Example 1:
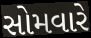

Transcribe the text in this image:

સોમવારે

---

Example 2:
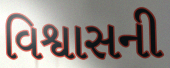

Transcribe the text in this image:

વિશ્વાસની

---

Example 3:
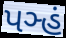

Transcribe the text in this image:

પઞ્હં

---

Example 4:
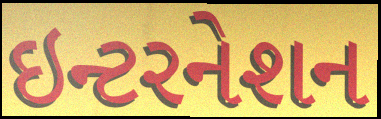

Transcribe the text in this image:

ઇન્ટરનેશન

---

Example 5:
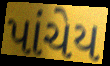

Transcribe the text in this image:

પાંચેય